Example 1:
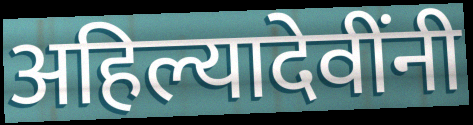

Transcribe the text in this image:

अहिल्यादेवींनी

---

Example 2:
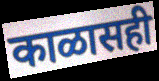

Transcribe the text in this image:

काळासही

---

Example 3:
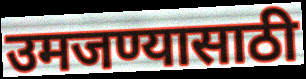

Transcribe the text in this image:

उमजण्यासाठी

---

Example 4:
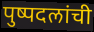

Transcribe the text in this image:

पुष्पदलांची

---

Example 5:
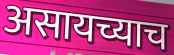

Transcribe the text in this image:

असायच्याच